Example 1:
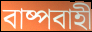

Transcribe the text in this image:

বাষ্পবাহী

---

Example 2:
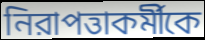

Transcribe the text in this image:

নিরাপত্তাকর্মীকে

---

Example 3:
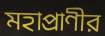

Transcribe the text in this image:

মহাপ্রাণীর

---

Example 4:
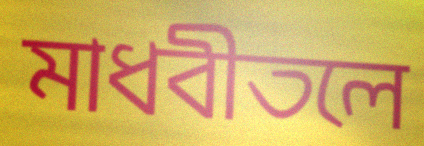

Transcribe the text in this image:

মাধবীতলে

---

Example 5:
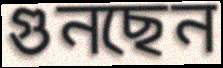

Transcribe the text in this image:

গুনছেন